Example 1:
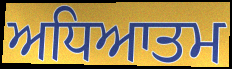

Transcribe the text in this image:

ਅਧਿਆਤਮ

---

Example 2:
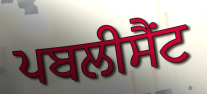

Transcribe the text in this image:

ਪਬਲੀਸੈਂਟ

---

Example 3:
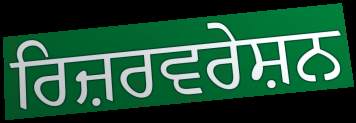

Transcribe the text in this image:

ਰਿਜ਼ਰਵਰੇਸ਼ਨ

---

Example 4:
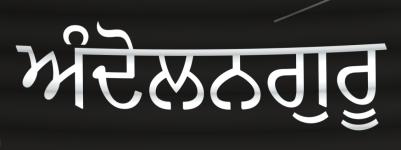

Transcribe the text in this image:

ਅੰਦੋਲਨਗੁਰੂ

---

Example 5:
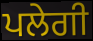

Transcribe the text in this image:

ਪਲੇਗੀ